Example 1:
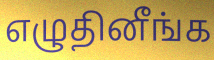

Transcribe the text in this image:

எழுதினீங்க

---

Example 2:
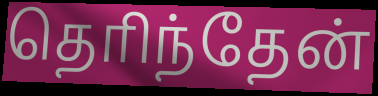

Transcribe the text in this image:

தெரிந்தேன்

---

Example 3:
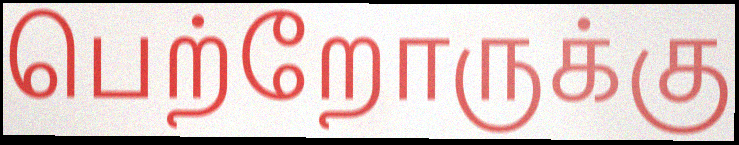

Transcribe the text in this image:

பெற்றோருக்கு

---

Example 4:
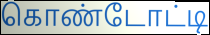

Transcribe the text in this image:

கொண்டோட்டி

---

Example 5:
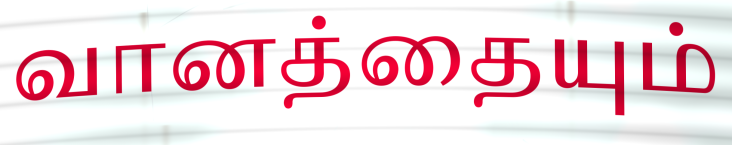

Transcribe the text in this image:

வானத்தையும்